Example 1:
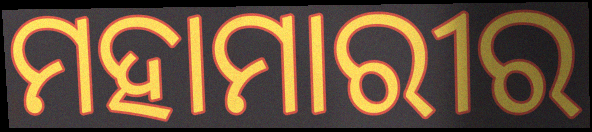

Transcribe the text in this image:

ମହାମାରୀର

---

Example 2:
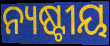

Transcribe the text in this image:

ନ୍ୟଷ୍ଟୀୟ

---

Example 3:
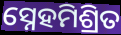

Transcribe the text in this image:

ସ୍ନେହମିଶ୍ରିତ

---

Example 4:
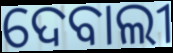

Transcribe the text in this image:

ଦେବାଲୀ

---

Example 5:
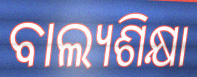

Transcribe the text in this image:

ବାଲ୍ୟଶିକ୍ଷା